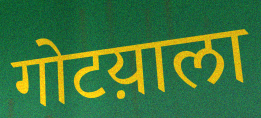
गोटय़ाला